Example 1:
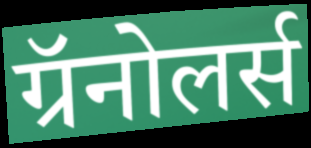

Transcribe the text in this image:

ग्रॅनोलर्स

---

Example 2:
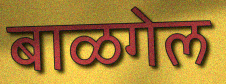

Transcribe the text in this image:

बाळगेल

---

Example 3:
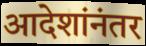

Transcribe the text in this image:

आदेशांनंतर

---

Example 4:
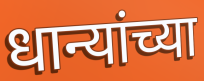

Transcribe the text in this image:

धान्यांच्या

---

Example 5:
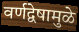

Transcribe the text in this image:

वर्णद्वेषामुळे